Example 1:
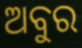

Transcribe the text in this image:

ଅବୁର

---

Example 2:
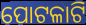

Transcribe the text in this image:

ପୋଟଳାଟି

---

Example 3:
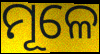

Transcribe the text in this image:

ମୂଳେ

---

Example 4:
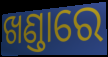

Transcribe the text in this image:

ଖଣ୍ଡାରେ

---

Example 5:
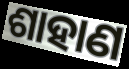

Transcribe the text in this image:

ଶାହାଣ